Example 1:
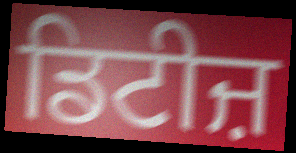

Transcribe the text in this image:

ਡਿਟੀਜ਼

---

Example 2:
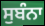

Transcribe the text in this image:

ਸੁਬੰਨਾ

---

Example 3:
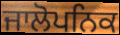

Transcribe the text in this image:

ਜਾਲੋਪਨਿਕ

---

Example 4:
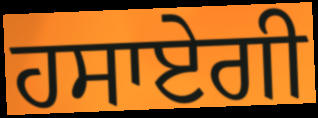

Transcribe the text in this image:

ਹਸਾਏਗੀ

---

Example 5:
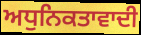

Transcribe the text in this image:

ਅਧੁਨਿਕਤਾਵਾਦੀ